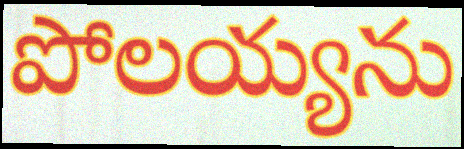
పోలయ్యను